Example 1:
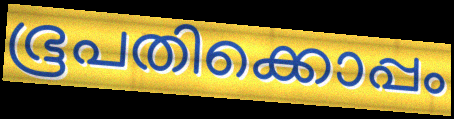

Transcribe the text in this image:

ഭൂപതിക്കൊപ്പം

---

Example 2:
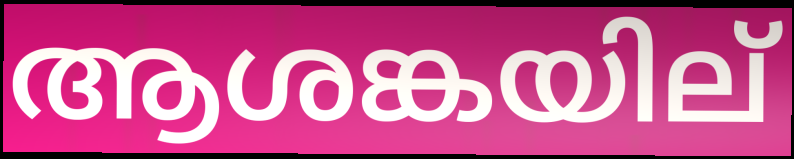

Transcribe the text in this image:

ആശങ്കയില്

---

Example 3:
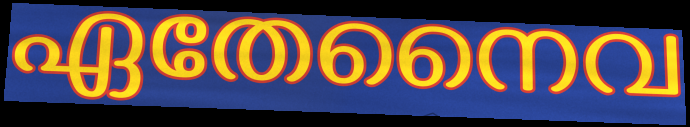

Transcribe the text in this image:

ഏതേനൈവ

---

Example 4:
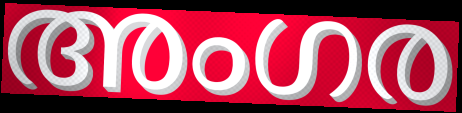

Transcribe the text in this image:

അംഗര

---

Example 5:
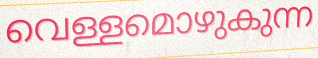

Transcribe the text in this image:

വെള്ളമൊഴുകുന്ന